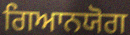
ਗਿਆਨਯੋਗ